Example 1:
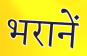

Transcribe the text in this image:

भरानें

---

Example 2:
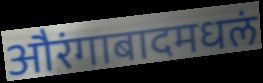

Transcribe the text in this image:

औरंगाबादमधलं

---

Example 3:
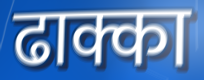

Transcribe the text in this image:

ढाक्का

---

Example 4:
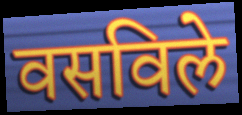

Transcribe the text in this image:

वसविले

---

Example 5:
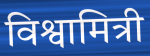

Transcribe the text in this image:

विश्वामित्री